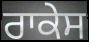
ਰਾਕੇਸ